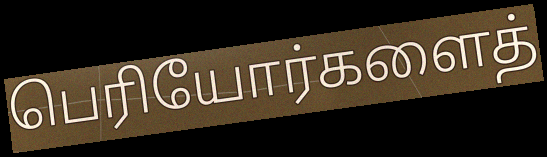
பெரியோர்களைத்